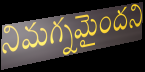
నిమగ్నమైందని